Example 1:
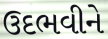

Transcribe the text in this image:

ઉદભવીને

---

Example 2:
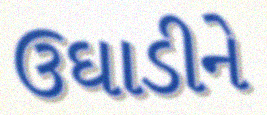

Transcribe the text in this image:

ઉઘાડીને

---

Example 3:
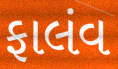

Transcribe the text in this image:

ફાલંવ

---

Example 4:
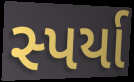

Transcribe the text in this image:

સ્પર્યા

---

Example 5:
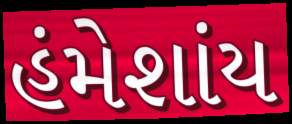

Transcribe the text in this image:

હંમેશાંય